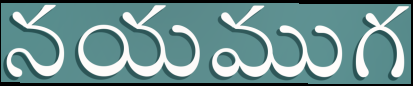
నయముగ